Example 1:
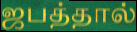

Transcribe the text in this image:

ஜபத்தால்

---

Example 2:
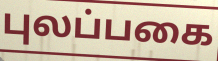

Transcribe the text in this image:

புலப்பகை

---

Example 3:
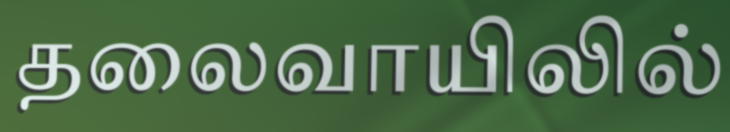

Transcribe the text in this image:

தலைவாயிலில்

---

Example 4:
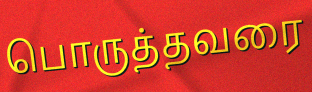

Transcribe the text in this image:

பொருத்தவரை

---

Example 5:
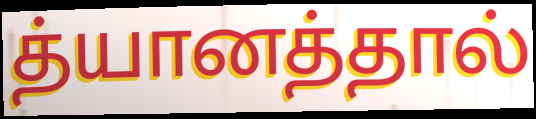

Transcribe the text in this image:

த்யானத்தால்